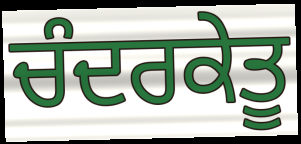
ਚੰਦਰਕੇਤੂ